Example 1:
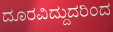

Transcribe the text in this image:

ದೂರವಿದ್ದುದರಿಂದ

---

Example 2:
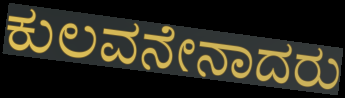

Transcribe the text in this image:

ಕುಲವನೇನಾದರು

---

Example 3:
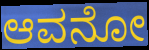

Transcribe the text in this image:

ಆವನೋ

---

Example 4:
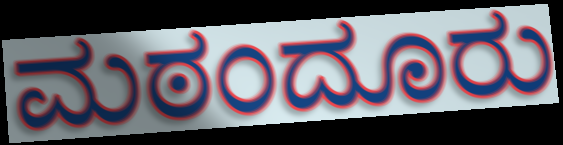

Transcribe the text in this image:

ಮಠಂದೂರು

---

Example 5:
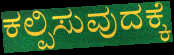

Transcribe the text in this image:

ಕಲ್ಪಿಸುವುದಕ್ಕೆ